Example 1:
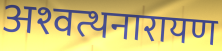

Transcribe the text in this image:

अश्वत्थनारायण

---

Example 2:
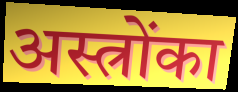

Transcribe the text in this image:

अस्त्रोंका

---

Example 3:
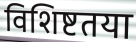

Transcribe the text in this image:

विशिष्टतया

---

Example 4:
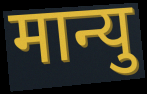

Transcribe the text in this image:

मान्यु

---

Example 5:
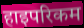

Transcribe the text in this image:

हाइपरिकम